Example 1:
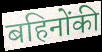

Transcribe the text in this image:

बहिनोंकी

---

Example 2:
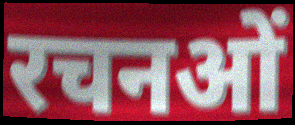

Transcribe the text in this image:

रचनओं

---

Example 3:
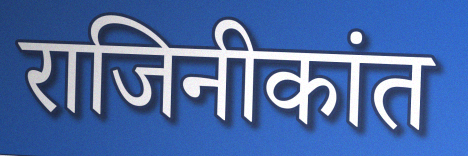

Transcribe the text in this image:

राजिनीकांत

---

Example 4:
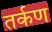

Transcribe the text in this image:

तर्कण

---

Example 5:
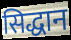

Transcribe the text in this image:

सिद्धान